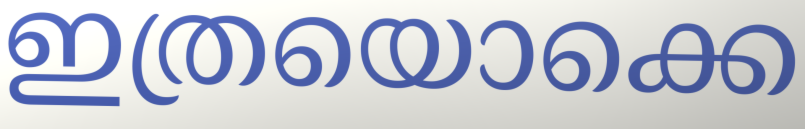
ഇത്രയൊക്കെ